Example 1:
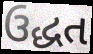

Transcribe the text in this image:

ઉદ્ધત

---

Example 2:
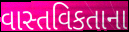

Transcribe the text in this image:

વાસ્તવિકતાના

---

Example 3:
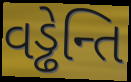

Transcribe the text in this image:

વડ્ઢેન્તિ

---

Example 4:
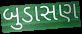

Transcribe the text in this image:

બુડાસણ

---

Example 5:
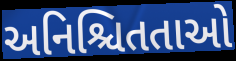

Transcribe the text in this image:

અનિશ્ચિતતાઓ